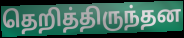
தெறித்திருந்தன